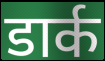
डार्क